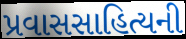
પ્રવાસસાહિત્યની